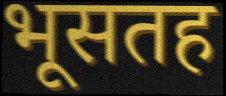
भूसतह